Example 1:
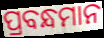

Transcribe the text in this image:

ପ୍ରବନ୍ଧମାନ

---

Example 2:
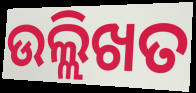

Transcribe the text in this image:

ଉଲ୍ଲିଖତ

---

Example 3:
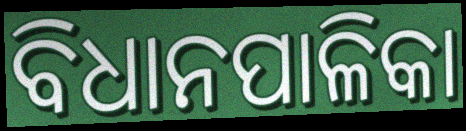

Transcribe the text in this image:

ବିଧାନପାଳିକା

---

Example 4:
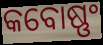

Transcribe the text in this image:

କବୋଷ୍ଣଂ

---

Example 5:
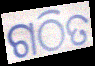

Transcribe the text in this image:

ଗଠିତ